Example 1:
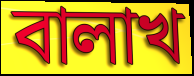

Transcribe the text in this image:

বালাখ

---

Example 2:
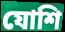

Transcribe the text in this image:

যোশি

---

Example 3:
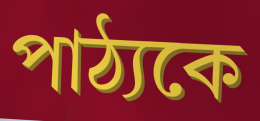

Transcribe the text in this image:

পাঠ্যকে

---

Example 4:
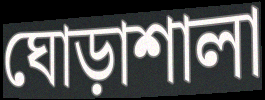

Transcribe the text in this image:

ঘোড়াশালা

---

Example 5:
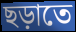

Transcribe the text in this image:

ছড়াতে